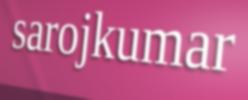
sarojkumar